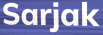
Sarjak